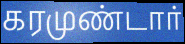
கரமுண்டார்